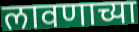
लावणाच्या